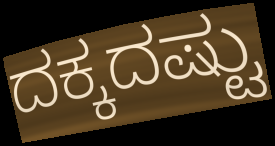
ದಕ್ಕದಷ್ಟು